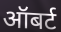
ऑबर्ट